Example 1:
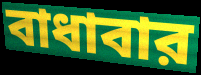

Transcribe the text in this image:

বাধাবার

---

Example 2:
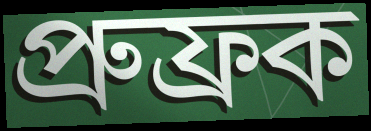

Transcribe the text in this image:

প্রুফ্রক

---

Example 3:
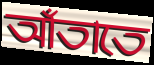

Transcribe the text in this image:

আঁতাতে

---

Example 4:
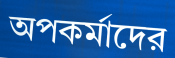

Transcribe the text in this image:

অপকর্মাদের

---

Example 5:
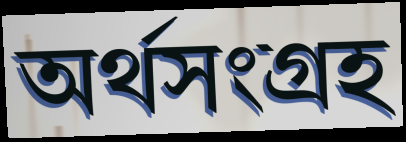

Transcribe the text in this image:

অর্থসংগ্রহ